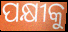
ପକ୍ଷୀକୁ